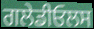
ਗਲੇਡੀਓਲਸ